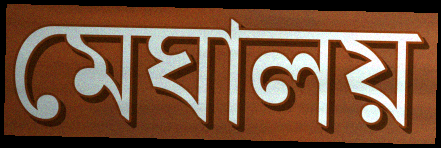
মেঘালয়